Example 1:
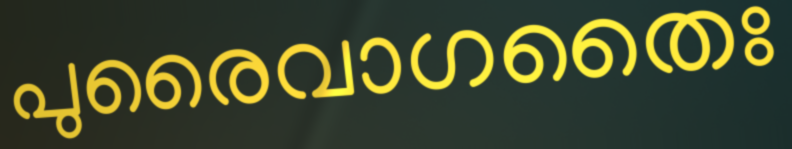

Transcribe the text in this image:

പുരൈവാഗതൈഃ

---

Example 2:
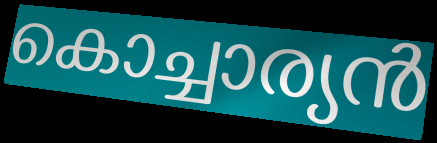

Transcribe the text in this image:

കൊച്ചാര്യൻ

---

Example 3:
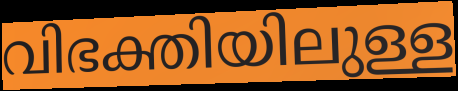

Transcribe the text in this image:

വിഭക്തിയിലുള്ള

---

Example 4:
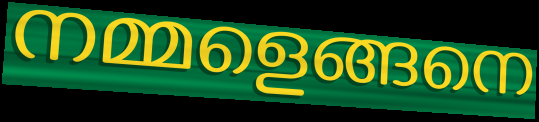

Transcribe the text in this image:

നമ്മളെങ്ങനെ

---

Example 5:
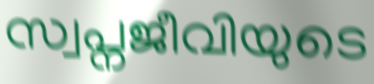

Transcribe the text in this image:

സ്വപ്നജീവിയുടെ